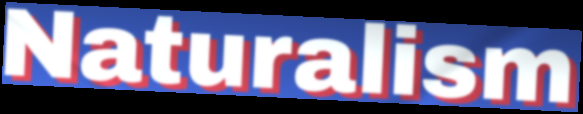
Naturalism